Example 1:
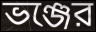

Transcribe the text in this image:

ভঞ্জের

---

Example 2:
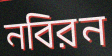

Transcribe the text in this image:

নবিরন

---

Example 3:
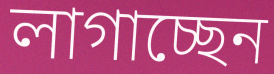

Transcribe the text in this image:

লাগাচ্ছেন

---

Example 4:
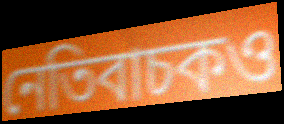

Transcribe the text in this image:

নেতিবাচকও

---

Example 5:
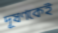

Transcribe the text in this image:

দূষণকেই